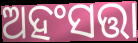
ଅହଂସତ୍ତା